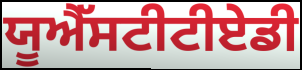
ਯੂਐੱਸਟੀਟੀਏਡੀ